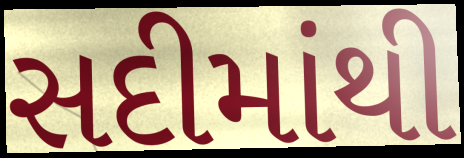
સદીમાંથી